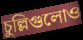
চুল্লিগুলোও